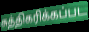
சுத்திகரிக்கப்பட